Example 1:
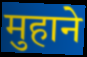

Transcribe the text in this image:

मुहाने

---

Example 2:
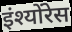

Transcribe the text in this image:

इंश्योंरेस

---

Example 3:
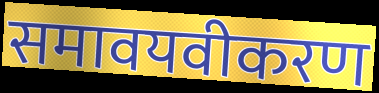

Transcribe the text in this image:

समावयवीकरण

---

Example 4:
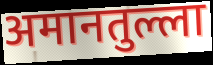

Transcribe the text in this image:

अमानतुल्ला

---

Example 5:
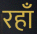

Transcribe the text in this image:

रहाँ